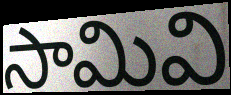
సామివి